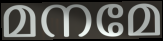
മനമേ